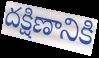
దక్షిణానికి